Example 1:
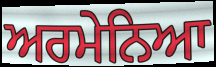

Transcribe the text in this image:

ਅਰਮੇਨਿਆ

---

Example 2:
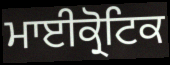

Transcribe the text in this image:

ਮਾਈਕ੍ਰੋਟਿਕ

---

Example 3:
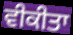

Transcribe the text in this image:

ਵੀਕੀਤਾ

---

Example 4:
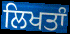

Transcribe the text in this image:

ਲਿਖਤਾੰ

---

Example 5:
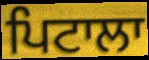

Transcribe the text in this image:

ਪਿਟਾਲਾ